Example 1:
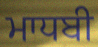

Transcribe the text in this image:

ਮਾਧਬੀ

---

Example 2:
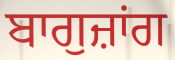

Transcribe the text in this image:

ਬਾਗੁਜ਼ਾਂਗ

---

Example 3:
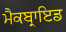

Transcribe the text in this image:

ਮੈਕਬ੍ਰਾਇਡ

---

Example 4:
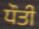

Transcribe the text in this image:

ਧੌਤੀ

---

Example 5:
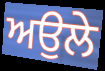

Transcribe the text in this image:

ਅਉਲੇ